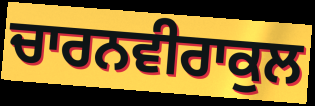
ਚਾਰਨਵੀਰਾਕੁਲ